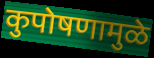
कुपोषणामुळे